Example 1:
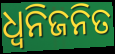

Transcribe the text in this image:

ଧ୍ଵନିଜନିତ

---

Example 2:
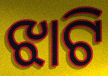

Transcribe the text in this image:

ଝାଟି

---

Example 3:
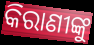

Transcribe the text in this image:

କିରାଣୀଙ୍କୁ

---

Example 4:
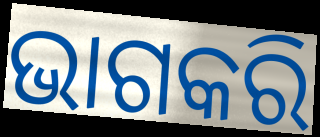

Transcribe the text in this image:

ଭାଗକରି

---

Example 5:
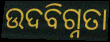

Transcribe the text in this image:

ଉଦବିଗ୍ନତା